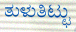
ತುಳುತಿಟ್ಟು